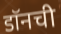
डॉनची